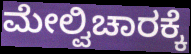
ಮೇಲ್ವಿಚಾರಕ್ಕೆ